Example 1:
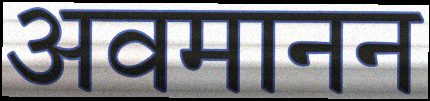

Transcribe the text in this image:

अवमानन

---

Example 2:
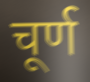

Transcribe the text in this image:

चूर्ण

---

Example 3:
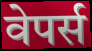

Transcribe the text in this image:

वेपर्स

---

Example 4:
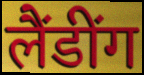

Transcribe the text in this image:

लैंडींग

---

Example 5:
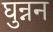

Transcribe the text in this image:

घुन्नन